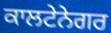
ਕਾਲਟੇਨੇਗਰ